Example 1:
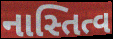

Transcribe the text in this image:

નાસ્તિત્વ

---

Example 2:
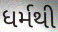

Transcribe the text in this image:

ધર્મથી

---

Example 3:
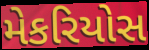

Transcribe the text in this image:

મેકરિયોસ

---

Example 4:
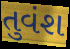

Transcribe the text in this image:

તુવંશ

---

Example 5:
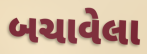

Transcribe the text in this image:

બચાવેલા